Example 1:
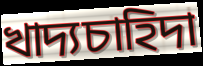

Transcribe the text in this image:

খাদ্যচাহিদা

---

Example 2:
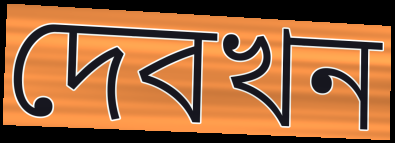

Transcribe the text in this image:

দেবখন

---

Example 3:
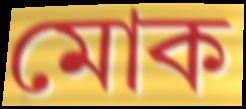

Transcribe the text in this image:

মোক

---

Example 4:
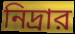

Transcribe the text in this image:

নিদ্রার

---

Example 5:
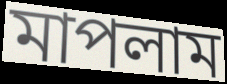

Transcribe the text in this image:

মাপলাম